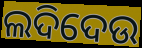
ଲଦିଦେଉ